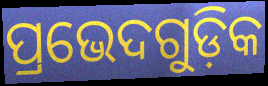
ପ୍ରଭେଦଗୁଡ଼ିକ